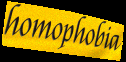
homophobia